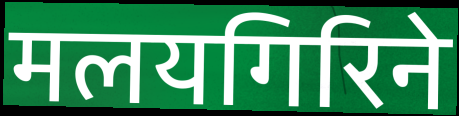
मलयगिरिने